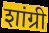
शांग्री